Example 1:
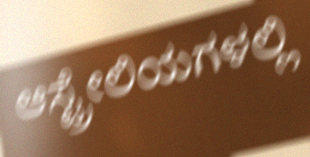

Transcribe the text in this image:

ಆಸ್ಟ್ರೇಲಿಯಗಳಲ್ಲಿ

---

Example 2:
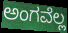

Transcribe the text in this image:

ಅಂಗವೆಲ್ಲ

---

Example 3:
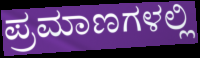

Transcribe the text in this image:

ಪ್ರಮಾಣಗಳಲ್ಲಿ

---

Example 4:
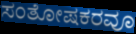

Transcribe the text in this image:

ಸಂತೋಷಕರವೂ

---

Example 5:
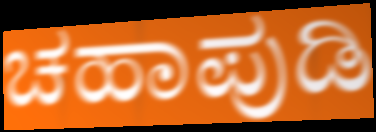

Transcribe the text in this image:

ಚಹಾಪುಡಿ